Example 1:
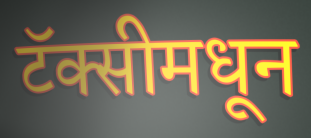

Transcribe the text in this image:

टॅक्सीमधून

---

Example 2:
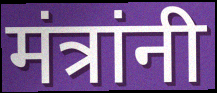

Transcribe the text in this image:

मंत्रांनी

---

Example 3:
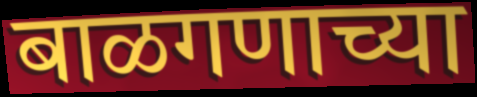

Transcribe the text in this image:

बाळगणाच्या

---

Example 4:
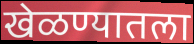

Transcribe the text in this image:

खेळण्यातला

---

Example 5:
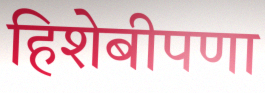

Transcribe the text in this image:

हिशेबीपणा